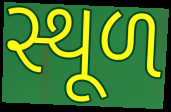
સ્થૂળ